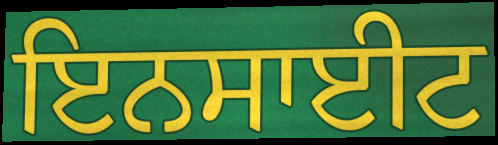
ਇਨਸਾਈਟ